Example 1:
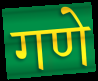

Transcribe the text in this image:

गणे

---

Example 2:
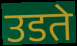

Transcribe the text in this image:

उडते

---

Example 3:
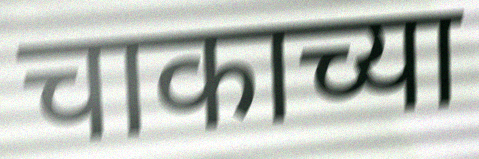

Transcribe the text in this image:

चाकाच्या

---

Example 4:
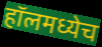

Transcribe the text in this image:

हॉलमध्येच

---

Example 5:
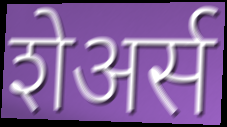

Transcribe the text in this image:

शेअर्स